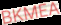
BKMEA